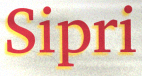
Sipri